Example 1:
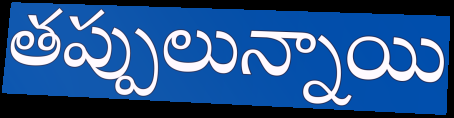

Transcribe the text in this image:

తప్పులున్నాయి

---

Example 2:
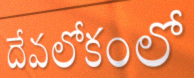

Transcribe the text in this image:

దేవలోకంలో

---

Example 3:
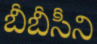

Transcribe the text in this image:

బీబీసీని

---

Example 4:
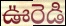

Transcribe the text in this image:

ఊరెడి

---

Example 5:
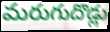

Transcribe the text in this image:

మరుగుదొడ్లు